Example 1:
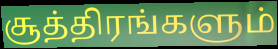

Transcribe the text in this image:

சூத்திரங்களும்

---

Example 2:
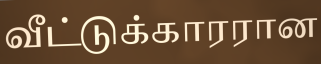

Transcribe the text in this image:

வீட்டுக்காரரான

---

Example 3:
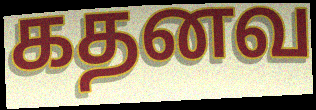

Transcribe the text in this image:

கதனவ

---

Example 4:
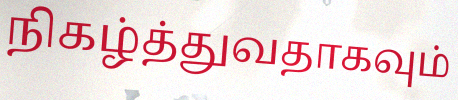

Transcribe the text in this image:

நிகழ்த்துவதாகவும்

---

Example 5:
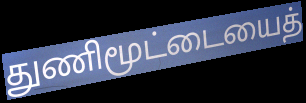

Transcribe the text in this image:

துணிமூட்டையைத்